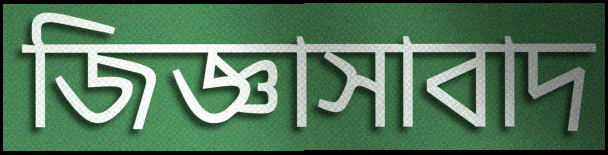
জিজ্ঞাসাবাদ